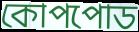
কোপপোড